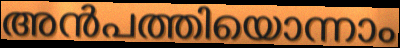
അൻപത്തിയൊന്നാം